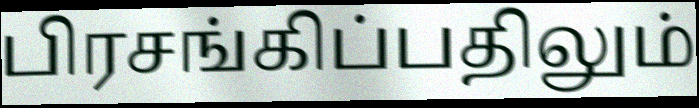
பிரசங்கிப்பதிலும்